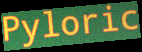
Pyloric